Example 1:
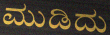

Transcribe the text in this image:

ಮುಡಿದು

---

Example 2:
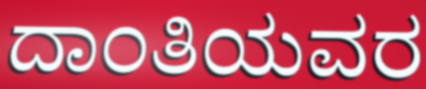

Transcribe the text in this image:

ದಾಂತಿಯವರ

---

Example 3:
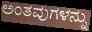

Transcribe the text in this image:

ಅಂತವುಗಳನ್ನು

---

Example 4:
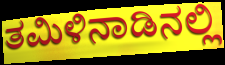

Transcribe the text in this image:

ತಮಿಳಿನಾಡಿನಲ್ಲಿ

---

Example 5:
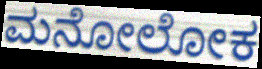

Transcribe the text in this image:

ಮನೋಲೋಕ